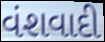
વંશવાદી